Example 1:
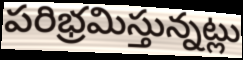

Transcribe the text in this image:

పరిభ్రమిస్తున్నట్లు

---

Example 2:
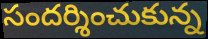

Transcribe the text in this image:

సందర్శించుకున్న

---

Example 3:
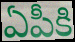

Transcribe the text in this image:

ఏపీకి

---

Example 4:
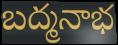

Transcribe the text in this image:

బద్మనాభ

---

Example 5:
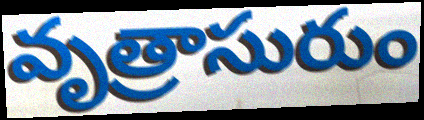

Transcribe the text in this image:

వృత్రాసురుం